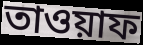
তাওয়াফ